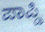
ಪಾಪ್ಡಿ